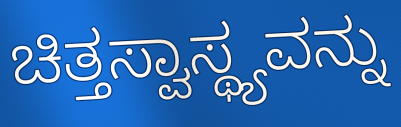
ಚಿತ್ತಸ್ವಾಸ್ಥ್ಯವನ್ನು